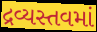
દ્રવ્યસ્તવમાં